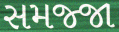
સમજ્જા